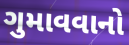
ગુમાવવાનો